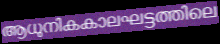
ആധുനികകാലഘട്ടത്തിലെ